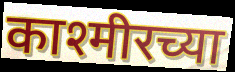
काश्मीरच्या